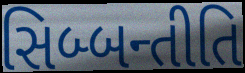
સિબ્બન્તીતિ